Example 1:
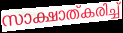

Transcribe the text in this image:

സാക്ഷാത്കരിച്ച്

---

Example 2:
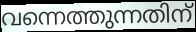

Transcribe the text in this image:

വന്നെത്തുന്നതിന്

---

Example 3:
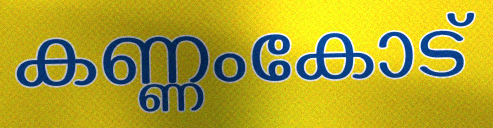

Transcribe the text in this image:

കണ്ണംകോട്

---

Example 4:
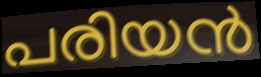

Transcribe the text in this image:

പരിയൻ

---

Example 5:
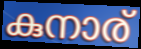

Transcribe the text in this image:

കുനാര്